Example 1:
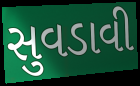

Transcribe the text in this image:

સુવડાવી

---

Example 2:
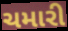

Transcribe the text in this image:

ચમારી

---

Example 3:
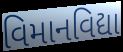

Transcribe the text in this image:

વિમાનવિદ્યા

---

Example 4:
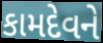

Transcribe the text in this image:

કામદેવને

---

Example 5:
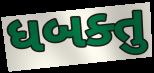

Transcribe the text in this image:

ધબક્તુ